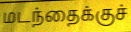
மடந்தைக்குச்